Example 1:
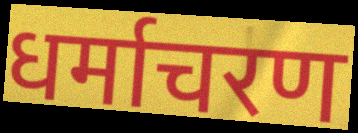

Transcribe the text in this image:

धर्माचरण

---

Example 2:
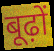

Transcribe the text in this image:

बूढ़ों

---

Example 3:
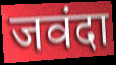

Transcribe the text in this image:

जवंदा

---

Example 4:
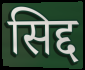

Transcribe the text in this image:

सिद्द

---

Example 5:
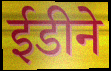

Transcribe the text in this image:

ईडीने